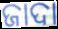
ଜାଦା